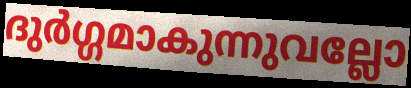
ദുർഗ്ഗമാകുന്നുവല്ലോ